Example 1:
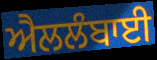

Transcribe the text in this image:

ਐਲਲੰਬਾਈ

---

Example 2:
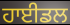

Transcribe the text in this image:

ਹਾਈਡਲ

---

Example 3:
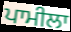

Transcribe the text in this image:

ਪਾਮੀਲਾ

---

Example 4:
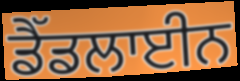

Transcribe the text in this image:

ਡੈੱਡਲਾਈਨ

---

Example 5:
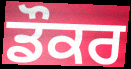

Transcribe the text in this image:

ਡੌਕਰ